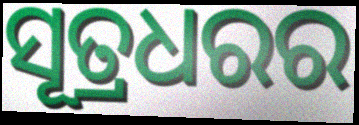
ସୂତ୍ରଧରର